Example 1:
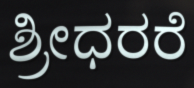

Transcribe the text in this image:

ಶ್ರೀಧರರೆ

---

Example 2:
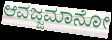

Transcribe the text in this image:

ಆವಜ್ಜಮಾನೋ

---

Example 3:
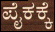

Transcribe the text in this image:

ಪೈಕಕ್ಕೆ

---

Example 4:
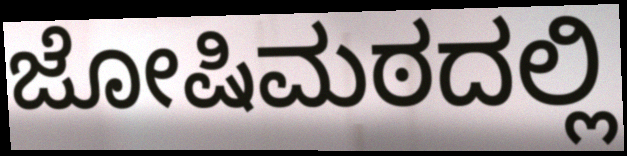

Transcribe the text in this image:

ಜೋಷಿಮಠದಲ್ಲಿ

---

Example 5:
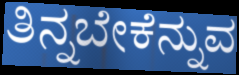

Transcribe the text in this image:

ತಿನ್ನಬೇಕೆನ್ನುವ